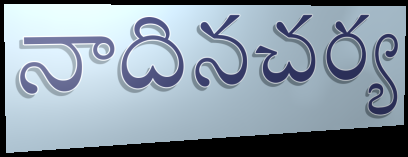
నాదినచర్య